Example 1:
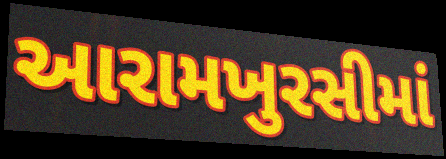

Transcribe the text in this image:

આરામખુરસીમાં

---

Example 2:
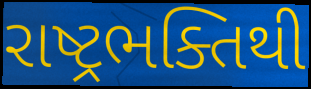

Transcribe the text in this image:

રાષ્ટ્રભક્તિથી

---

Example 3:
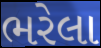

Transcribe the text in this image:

ભરેલા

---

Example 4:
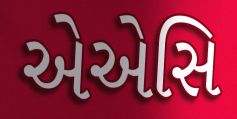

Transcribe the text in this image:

એએસિ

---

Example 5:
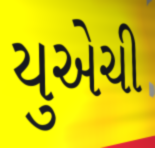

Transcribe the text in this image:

યુએચી